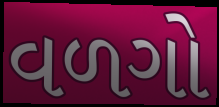
વળગો